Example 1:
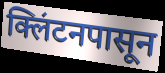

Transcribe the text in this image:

क्लिंटनपासून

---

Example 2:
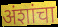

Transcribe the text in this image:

अंशांचा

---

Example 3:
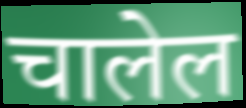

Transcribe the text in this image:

चालेल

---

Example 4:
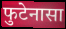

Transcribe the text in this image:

फुटेनासा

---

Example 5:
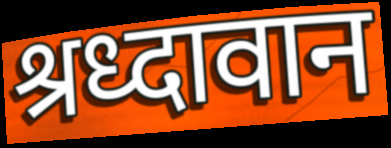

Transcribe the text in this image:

श्रध्दावान